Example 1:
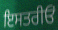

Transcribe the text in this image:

ਇਸਤਰੀਓਂ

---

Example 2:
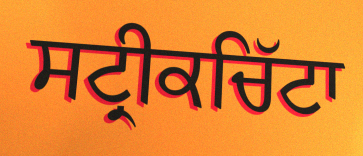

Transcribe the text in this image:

ਸਟ੍ਰੀਕਚਿੱਟਾ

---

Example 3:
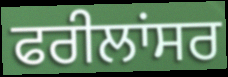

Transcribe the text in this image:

ਫਰੀਲਾਂਸਰ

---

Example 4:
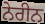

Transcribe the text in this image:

ਨੇਰੀਨ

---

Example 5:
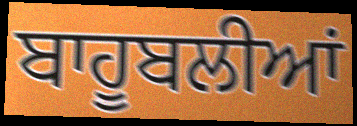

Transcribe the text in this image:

ਬਾਹੂਬਲੀਆਂ